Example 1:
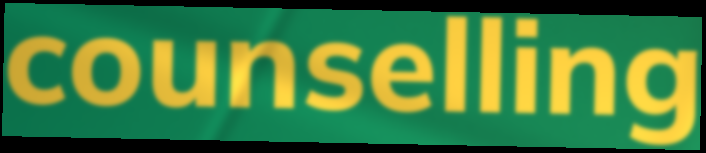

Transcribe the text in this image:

counselling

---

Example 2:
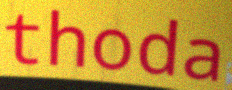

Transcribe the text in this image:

thoda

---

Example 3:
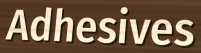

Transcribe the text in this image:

Adhesives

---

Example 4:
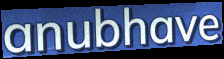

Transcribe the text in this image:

anubhave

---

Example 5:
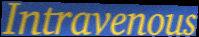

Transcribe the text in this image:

Intravenous